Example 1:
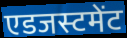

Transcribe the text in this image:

एडजस्टमेंट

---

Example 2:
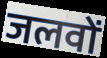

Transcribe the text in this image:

जलवों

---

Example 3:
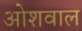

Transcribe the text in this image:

ओशवाल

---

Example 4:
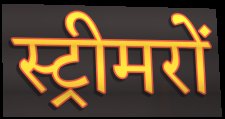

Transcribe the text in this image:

स्ट्रीमरों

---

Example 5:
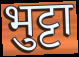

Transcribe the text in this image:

भुट्टा